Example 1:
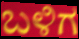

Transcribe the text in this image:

ಬಳಿಗ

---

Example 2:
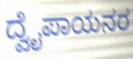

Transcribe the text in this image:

ದ್ವೈಪಾಯನರ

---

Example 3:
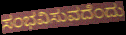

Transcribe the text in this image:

ಸಂಭವಿಸುವದೆಂದು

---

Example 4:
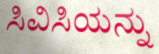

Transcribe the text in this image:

ಸಿವಿಸಿಯನ್ನು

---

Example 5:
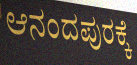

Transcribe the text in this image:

ಆನಂದಪುರಕ್ಕೆ